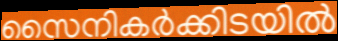
സൈനികർക്കിടയിൽ